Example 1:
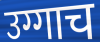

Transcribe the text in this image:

उग्गाच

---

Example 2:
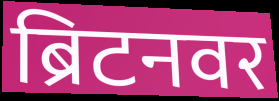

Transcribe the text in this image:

ब्रिटनवर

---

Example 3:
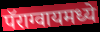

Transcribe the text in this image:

पॅराग्वायमध्ये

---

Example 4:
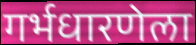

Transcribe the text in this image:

गर्भधारणेला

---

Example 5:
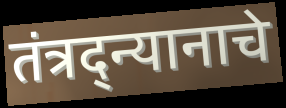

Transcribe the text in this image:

तंत्रद्न्यानाचे